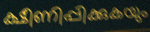
ക്ഷീണിപ്പിക്കുകയും